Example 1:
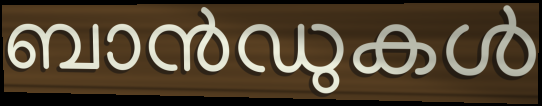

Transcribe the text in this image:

ബാൻഡുകൾ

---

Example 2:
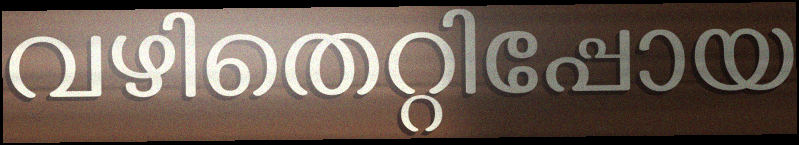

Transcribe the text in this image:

വഴിതെറ്റിപ്പോയ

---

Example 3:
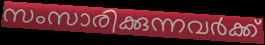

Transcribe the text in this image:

സംസാരിക്കുന്നവർക്ക്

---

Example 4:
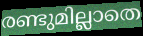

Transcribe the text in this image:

രണ്ടുമില്ലാതെ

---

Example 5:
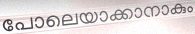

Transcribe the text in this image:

പോലെയാക്കാനാകും